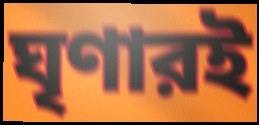
ঘৃণারই